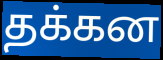
தக்கன